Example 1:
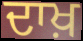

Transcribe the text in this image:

ਦਾਖ਼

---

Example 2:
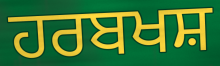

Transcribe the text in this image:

ਹਰਬਖਸ਼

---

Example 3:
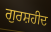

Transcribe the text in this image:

ਗੁਰਸ਼ਹੀਦ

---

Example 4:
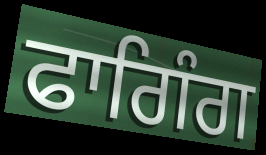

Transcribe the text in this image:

ਫਾਗਿੰਗ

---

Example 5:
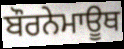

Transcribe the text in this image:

ਬੌਰਨੇਮਾਊਥ